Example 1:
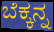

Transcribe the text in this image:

ಬೆಕ್ಕನ್ನ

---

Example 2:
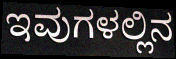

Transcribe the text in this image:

ಇವುಗಳಲ್ಲಿನ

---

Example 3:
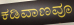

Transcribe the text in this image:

ಕಡಿವಾಣವೂ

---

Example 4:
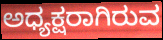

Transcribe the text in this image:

ಅಧ್ಯಕ್ಷರಾಗಿರುವ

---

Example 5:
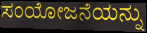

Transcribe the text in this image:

ಸಂಯೋಜನೆಯನ್ನು